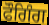
ਫੌਗਿੰਗ